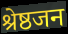
श्रेष्ठजन